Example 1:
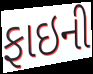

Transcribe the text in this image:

ફાઇની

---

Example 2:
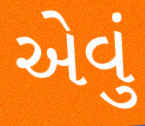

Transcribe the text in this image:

એવું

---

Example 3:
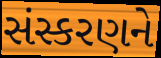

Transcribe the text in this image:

સંસ્કરણને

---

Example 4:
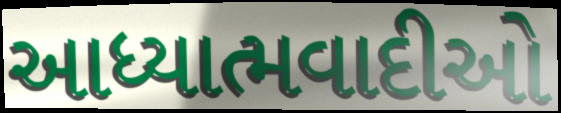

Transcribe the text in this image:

આધ્યાત્મવાદીઓ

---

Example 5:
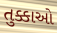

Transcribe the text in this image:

તુક્કાઓ